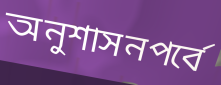
অনুশাসনপর্বে